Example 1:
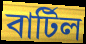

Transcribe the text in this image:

বার্টিল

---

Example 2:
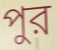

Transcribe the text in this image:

পুর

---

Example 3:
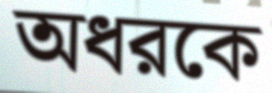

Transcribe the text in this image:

অধরকে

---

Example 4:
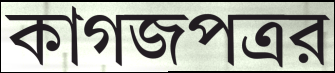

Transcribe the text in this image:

কাগজপত্রর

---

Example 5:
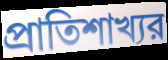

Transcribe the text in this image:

প্রাতিশাখ্যর